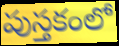
పుస్తకంలో